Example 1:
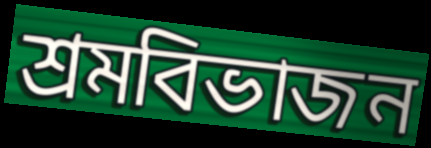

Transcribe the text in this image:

শ্রমবিভাজন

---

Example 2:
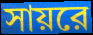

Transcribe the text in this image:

সায়রে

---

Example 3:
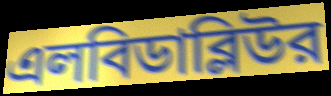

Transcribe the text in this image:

এলবিডাব্লিউর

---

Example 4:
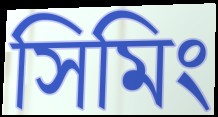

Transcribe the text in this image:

সিমিং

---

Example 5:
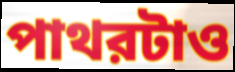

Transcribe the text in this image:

পাথরটাও